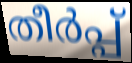
തീർപ്പ്